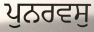
ਪੁਨਰਵਸੁ